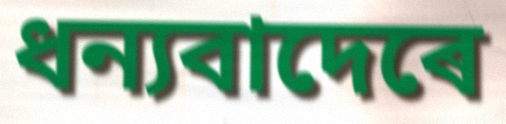
ধন্যবাদেৰে